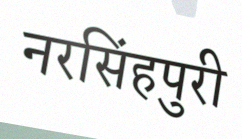
नरसिंहपुरी